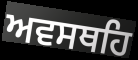
ਅਵਸਥਹਿ